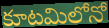
కూటమిలోనో